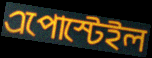
এপোস্টেইল